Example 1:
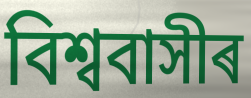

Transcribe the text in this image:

বিশ্ববাসীৰ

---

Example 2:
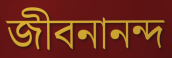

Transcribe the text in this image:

জীবনানন্দ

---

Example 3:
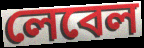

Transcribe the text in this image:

লেবেল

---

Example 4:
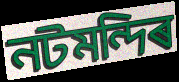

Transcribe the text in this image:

নটমন্দিৰ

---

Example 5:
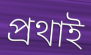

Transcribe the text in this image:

প্ৰথাই